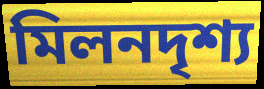
মিলনদৃশ্য